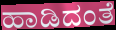
ಹಾಡಿದಂತೆ